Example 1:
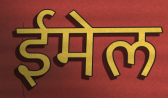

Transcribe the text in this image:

ईमेल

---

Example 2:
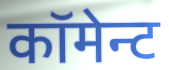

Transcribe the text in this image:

कॉमेन्ट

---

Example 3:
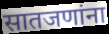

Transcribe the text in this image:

सातजणांना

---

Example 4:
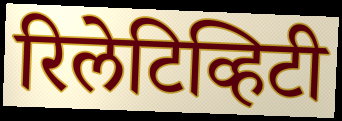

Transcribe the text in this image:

रिलेटिव्हिटी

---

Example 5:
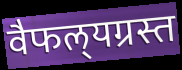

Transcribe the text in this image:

वैफल्यग्रस्त